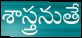
శాస్త్రనుతే